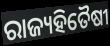
ରାଜ୍ୟହିତୈଷୀ